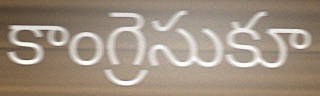
కాంగ్రెసుకూ